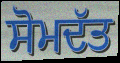
ਸੋਮਦੱਤ